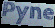
Pyne